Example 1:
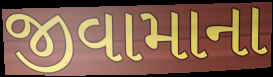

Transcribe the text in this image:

જીવામાના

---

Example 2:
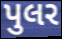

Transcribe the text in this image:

પુલર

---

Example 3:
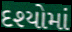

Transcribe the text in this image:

દશ્યોમાં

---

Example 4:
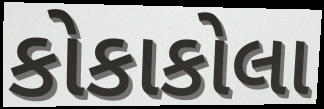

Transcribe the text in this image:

કોકાકોલા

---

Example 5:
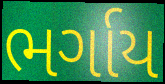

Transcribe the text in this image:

ભર્ગાય